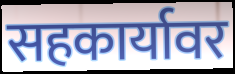
सहकार्यावर